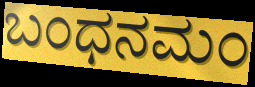
ಬಂಧನಮಂ